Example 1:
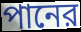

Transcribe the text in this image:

পানের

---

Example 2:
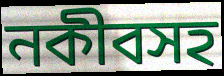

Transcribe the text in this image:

নকীবসহ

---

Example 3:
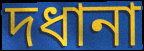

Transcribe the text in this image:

দধানা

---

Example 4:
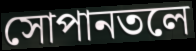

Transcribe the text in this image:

সোপানতলে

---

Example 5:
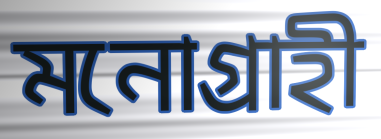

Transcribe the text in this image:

মনোগ্রাহী